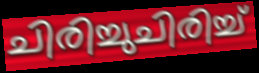
ചിരിച്ചുചിരിച്ച്